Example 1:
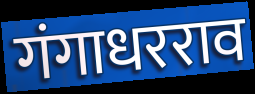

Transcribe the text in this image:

गंगाधरराव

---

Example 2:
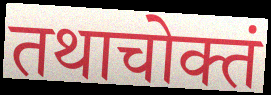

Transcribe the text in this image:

तथाचोक्तं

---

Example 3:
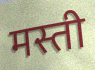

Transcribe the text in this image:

मस्‍ती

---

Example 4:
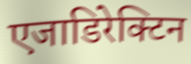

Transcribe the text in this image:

एजाडिरेक्टिन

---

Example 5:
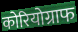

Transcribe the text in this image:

कोरियोग्राफ